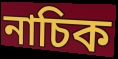
নাচিক